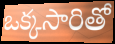
ఒక్కసారితో